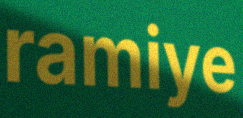
ramiye